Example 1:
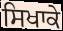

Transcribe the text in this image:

ਸਿਖਾਕੇ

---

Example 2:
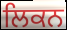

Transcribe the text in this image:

ਲਿਕਨ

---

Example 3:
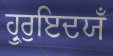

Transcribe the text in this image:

ਹ੍ਰੁਰੁਇਦਯਁ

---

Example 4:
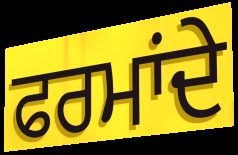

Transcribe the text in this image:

ਫਰਮਾਂਦੇ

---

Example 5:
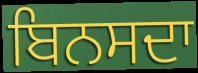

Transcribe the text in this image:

ਬਿਨਸਦਾ